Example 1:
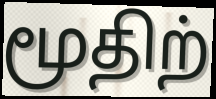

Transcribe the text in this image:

மூதிற்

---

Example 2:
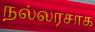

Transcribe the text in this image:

நல்லரசாக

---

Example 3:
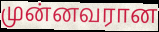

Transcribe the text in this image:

முன்னவரான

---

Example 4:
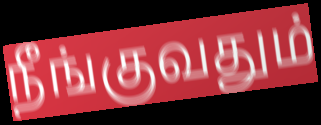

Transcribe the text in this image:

நீங்குவதும்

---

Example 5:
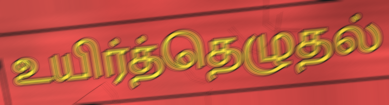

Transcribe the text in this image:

உயிர்த்தெழுதல்